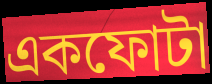
একফোটা